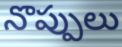
నొప్పులు